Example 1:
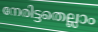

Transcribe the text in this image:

നേരിട്ടതെല്ലാം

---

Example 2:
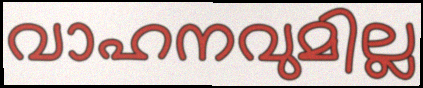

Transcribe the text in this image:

വാഹനവുമില്ല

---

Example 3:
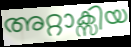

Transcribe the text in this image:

അറ്റാക്സിയ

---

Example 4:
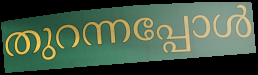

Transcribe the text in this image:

തുറന്നപ്പോൾ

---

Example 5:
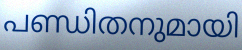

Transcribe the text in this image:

പണ്ഡിതനുമായി